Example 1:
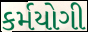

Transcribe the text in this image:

કર્મયોગી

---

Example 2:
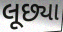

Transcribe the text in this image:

લૂછ્યા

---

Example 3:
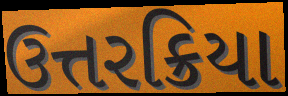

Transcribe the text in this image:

ઉત્તરક્રિયા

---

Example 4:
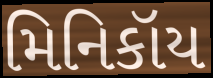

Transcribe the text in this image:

મિનિકૉય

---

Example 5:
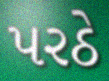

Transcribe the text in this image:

પરઠે